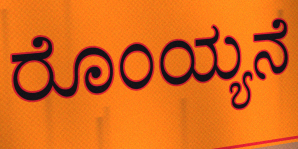
ರೊಂಯ್ಯನೆ